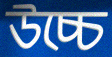
উচ্চে